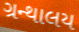
ગ્રન્થાલય